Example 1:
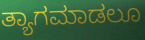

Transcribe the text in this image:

ತ್ಯಾಗಮಾಡಲೂ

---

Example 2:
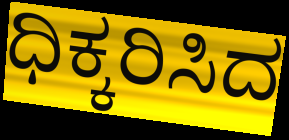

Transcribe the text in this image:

ಧಿಕ್ಕರಿಸಿದ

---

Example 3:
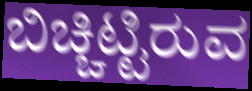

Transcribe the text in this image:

ಬಿಚ್ಚಿಟ್ಟಿರುವ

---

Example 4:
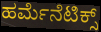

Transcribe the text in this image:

ಹರ್ಮೆನೆಟಿಕ್ಸ್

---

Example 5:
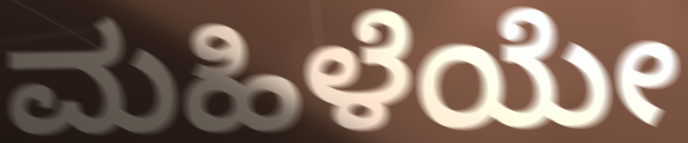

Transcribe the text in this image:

ಮಹಿಳೆಯೇ